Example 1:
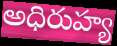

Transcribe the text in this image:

అధిరుహ్య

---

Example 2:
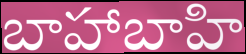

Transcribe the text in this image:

బాహాబాహి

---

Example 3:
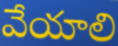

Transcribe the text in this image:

వేయాలి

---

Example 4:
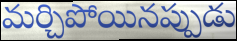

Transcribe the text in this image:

మర్చిపోయినప్పుడు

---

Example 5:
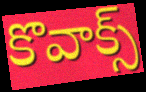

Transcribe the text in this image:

కొవాక్స్